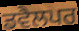
ਡਵੈਲਪਰ